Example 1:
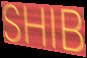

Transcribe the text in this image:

SHIB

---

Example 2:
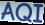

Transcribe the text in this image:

AQI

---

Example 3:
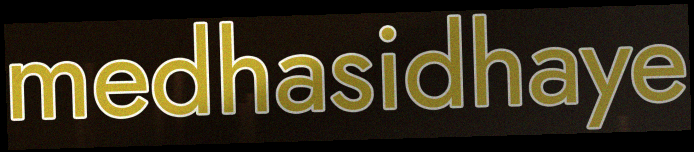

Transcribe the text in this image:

medhasidhaye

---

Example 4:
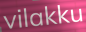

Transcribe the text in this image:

vilakku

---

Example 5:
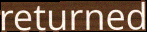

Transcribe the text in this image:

returned